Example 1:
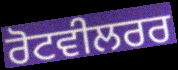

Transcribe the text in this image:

ਰੋਟਵੀਲਰਰ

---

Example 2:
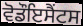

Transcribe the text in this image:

ਵੋਡੌਇਸੈਂਟਸ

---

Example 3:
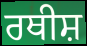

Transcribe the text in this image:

ਰਥੀਸ਼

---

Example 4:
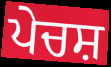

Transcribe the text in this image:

ਪੇਚਸ਼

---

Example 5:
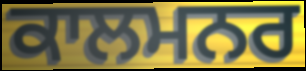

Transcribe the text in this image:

ਕਾਲਮਨਰ